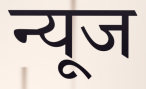
न्‍यूज